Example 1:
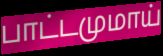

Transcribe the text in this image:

பாட்டமுமாய்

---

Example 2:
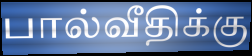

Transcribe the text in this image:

பால்வீதிக்கு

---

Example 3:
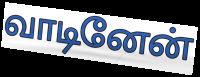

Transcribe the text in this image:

வாடினேன்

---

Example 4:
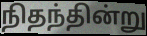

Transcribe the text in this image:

நிதந்தின்று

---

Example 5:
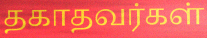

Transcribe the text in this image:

தகாதவர்கள்